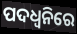
ପଦଧ୍ୱନିରେ